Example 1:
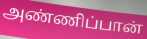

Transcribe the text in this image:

அண்ணிப்பான்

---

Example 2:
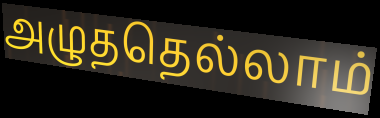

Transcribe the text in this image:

அழுததெல்லாம்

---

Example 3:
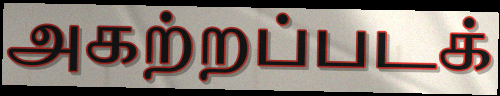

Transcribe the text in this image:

அகற்றப்படக்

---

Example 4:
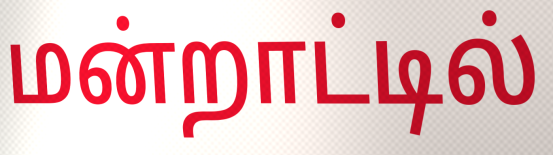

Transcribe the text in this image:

மன்றாட்டில்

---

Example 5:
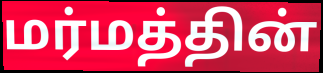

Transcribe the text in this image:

மர்மத்தின்